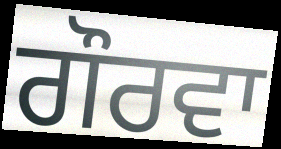
ਗੌਰਵਾ